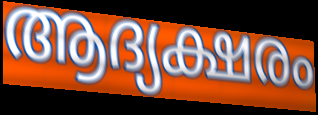
ആദ്യക്ഷരം